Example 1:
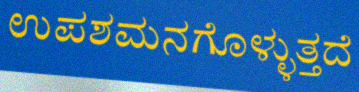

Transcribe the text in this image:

ಉಪಶಮನಗೊಳ್ಳುತ್ತದೆ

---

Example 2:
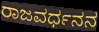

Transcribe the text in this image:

ರಾಜವರ್ಧನನ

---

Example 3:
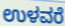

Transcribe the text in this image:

ಉಳವರೆ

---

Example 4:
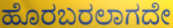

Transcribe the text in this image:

ಹೊರಬರಲಾಗದೇ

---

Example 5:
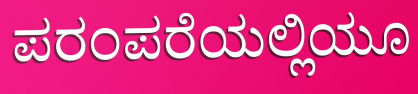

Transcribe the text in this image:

ಪರಂಪರೆಯಲ್ಲಿಯೂ